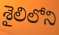
శైలిలోని